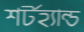
শর্টহ্যান্ড